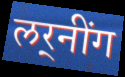
लर्नींग